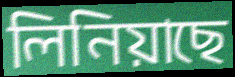
লিনিয়াছে